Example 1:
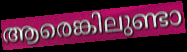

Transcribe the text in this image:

ആരെങ്കിലുണ്ടാ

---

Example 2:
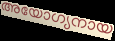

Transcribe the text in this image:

അയോഗ്യനായ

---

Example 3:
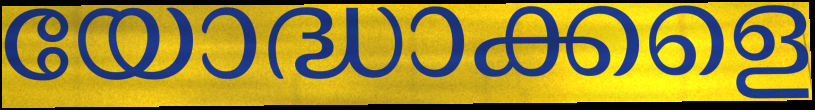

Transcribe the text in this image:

യോദ്ധാക്കളെ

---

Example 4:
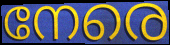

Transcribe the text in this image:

നേരെ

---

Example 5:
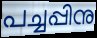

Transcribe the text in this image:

പച്ചപ്പിനു